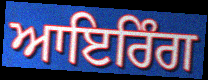
ਆਇਰਿੰਗ